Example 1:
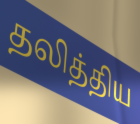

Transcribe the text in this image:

தலித்திய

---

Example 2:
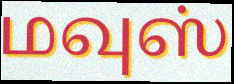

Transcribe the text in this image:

மவுஸ்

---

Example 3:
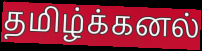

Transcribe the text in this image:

தமிழ்க்கனல்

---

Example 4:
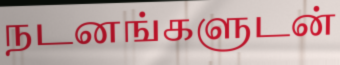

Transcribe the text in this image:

நடனங்களுடன்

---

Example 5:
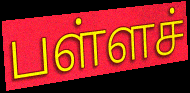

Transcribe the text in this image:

பள்ளச்